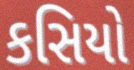
કસિયો